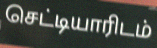
செட்டியாரிடம்